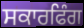
ਸਕਾਰਫਿੰਗ